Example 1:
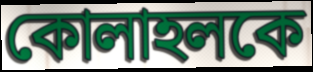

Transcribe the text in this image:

কোলাহলকে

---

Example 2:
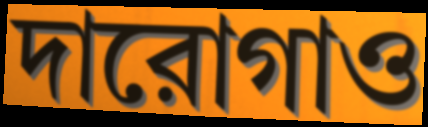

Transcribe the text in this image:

দারোগাও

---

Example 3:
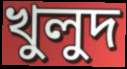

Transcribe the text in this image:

খুলুদ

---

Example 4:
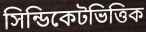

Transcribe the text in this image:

সিন্ডিকেটভিত্তিক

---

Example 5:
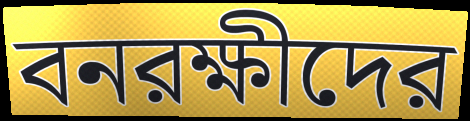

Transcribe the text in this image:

বনরক্ষীদের